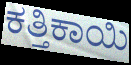
ಕತ್ತಿಕಾಯಿ